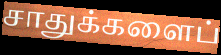
சாதுக்களைப்